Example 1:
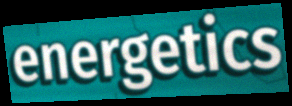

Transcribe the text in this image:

energetics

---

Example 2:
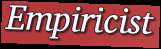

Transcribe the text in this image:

Empiricist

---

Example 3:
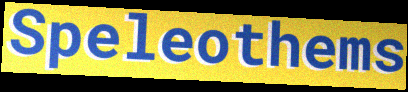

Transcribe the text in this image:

Speleothems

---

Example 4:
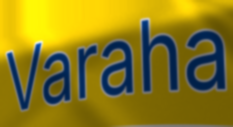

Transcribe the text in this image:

Varaha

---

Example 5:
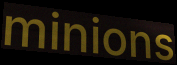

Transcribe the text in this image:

minions